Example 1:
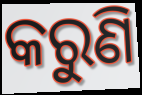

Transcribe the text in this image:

କରୁଣି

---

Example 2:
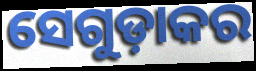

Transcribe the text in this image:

ସେଗୁଡ଼ାକର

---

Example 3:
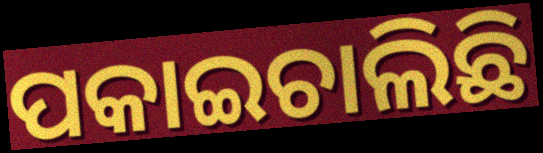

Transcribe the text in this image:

ପକାଇଚାଲିଛି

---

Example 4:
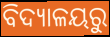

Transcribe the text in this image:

ବିଦ୍ୟାଳୟରୁ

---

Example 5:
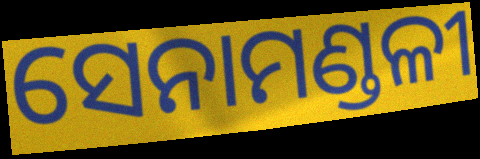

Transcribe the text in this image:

ସେନାମଣ୍ଡଳୀ